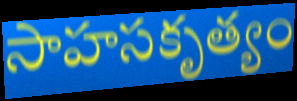
సాహసకృత్యం